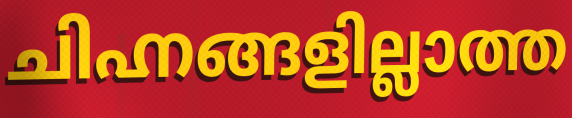
ചിഹ്നങ്ങളില്ലാത്ത